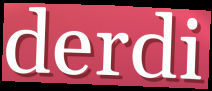
derdi